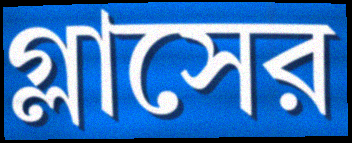
গ্লাসের